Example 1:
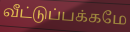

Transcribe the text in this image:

வீட்டுப்பக்கமே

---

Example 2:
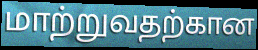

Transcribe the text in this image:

மாற்றுவதற்கான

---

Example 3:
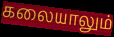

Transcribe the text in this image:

கலையாலும்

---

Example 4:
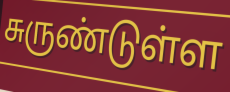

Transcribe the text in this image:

சுருண்டுள்ள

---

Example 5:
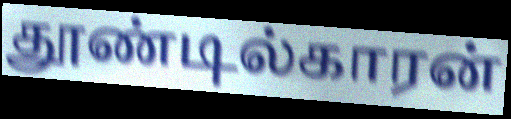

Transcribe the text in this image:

தூண்டில்காரன்